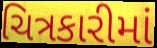
ચિત્રકારીમાં